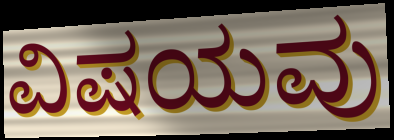
ವಿಷಯವು